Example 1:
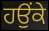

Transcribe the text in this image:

ਹਉਂਕੇ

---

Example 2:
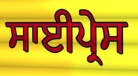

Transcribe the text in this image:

ਸਾਈਪ੍ਰੇਸ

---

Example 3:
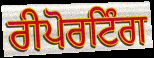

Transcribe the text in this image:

ਰੀਪੋਰਟਿੰਗ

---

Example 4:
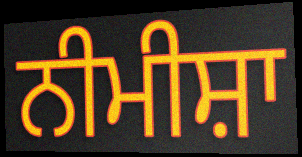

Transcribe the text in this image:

ਨੀਮੀਸ਼ਾ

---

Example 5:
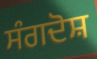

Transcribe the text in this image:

ਸੰਗਦੋਸ਼